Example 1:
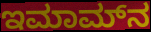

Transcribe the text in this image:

ಇಮಾಮ್‍ನ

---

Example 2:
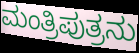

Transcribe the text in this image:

ಮಂತ್ರಿಪುತ್ರನು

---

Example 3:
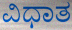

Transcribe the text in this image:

ವಿಧಾತ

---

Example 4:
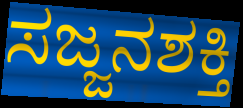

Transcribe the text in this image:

ಸಜ್ಜನಶಕ್ತಿ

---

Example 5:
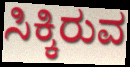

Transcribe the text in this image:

ಸಿಕ್ಕಿರುವ